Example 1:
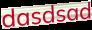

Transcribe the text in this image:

dasdsad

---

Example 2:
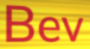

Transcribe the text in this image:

Bev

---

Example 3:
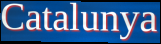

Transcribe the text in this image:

Catalunya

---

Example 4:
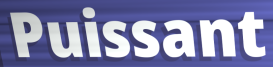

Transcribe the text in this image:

Puissant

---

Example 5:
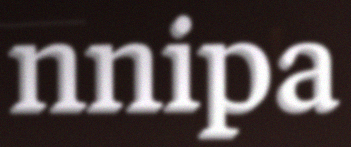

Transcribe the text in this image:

nnipa